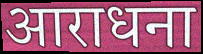
आराधना